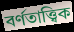
বৰ্ণতাত্ত্বিক